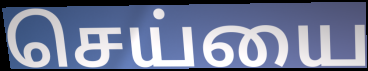
செய்யை